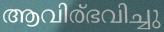
ആവിര്ഭവിച്ചു